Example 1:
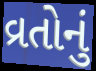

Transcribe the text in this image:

વ્રતોનું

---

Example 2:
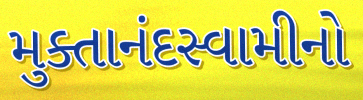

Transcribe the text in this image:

મુક્તાનંદસ્વામીનો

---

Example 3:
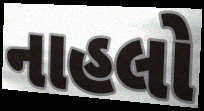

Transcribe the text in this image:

નાહલો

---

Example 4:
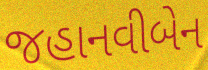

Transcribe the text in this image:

જહાનવીબેન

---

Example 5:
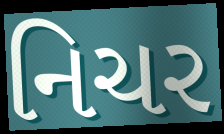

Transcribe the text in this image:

નિચર